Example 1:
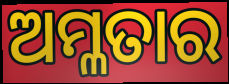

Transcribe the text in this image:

ଅମ୍ଳତାର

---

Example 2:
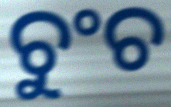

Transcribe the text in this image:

ଚୁଂଚ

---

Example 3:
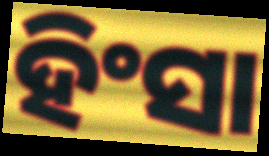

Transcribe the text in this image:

ହିଂସା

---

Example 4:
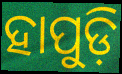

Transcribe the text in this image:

ହାପୁଡ଼ି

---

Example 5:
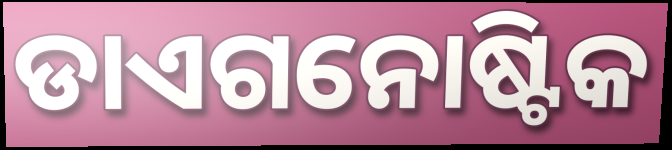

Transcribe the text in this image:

ଡାଏଗନୋଷ୍ଟିକ